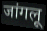
जांगलू